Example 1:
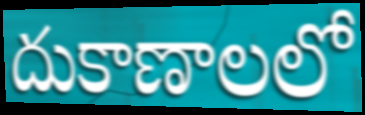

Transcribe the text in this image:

దుకాణాలలో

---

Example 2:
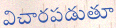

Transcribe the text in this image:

విచారపడుతూ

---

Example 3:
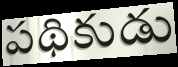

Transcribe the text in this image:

పథికుడు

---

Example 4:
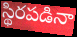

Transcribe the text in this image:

స్థిరపడినా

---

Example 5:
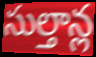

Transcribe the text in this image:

సుల్తాన్ల